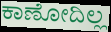
ಕಾಣೋದಿಲ್ಲ